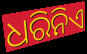
ଧରିନିଏ